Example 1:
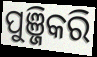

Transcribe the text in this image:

ପୁଞ୍ଜିକରି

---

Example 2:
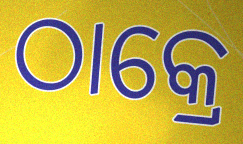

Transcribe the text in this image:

ଠାକ୍ରେ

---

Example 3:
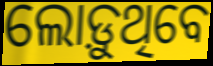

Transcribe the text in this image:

ଲୋଡ଼ୁଥିବେ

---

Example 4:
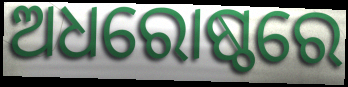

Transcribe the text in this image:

ଅଧରୋଷ୍ଠରେ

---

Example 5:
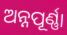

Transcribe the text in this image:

ଅନ୍ନପୂର୍ଣ୍ଣା